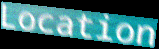
Location